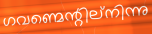
ഗവണ്മെന്റില്നിന്നു